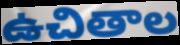
ఉచితాల